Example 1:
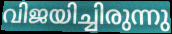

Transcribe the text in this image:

വിജയിച്ചിരുന്നു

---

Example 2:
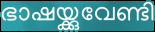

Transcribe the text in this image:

ഭാഷയ്ക്കുവേണ്ടി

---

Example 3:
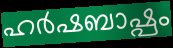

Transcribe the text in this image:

ഹർഷബാഷ്പം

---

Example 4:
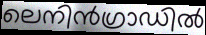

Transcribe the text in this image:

ലെനിൻഗ്രാഡിൽ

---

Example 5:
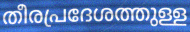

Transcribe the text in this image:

തീരപ്രദേശത്തുള്ള